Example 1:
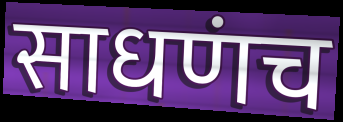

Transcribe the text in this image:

साधणंच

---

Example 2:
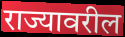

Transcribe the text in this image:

राज्यावरील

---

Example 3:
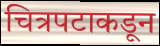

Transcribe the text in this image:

चित्रपटाकडून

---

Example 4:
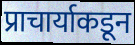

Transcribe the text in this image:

प्राचार्याकडून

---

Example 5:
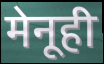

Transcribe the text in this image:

मेनूही